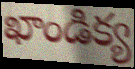
ఖాండిక్య